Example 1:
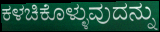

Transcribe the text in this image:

ಕಳಚಿಕೊಳ್ಳುವುದನ್ನು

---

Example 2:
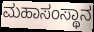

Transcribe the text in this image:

ಮಹಾಸಂಸ್ಥಾನ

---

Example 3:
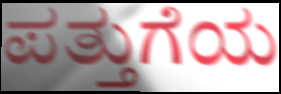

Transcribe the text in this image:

ಪತ್ತುಗೆಯ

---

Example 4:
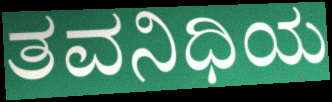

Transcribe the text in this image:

ತವನಿಧಿಯ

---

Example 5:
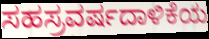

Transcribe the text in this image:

ಸಹಸ್ರವರ್ಷದಾಳಿಕೆಯ